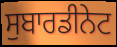
ਸੁਬਾਰਡੀਨੇਟ